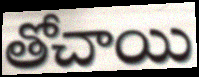
తోచాయి